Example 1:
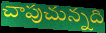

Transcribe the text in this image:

చాపుచున్నది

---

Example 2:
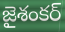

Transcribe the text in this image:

జైశంకర్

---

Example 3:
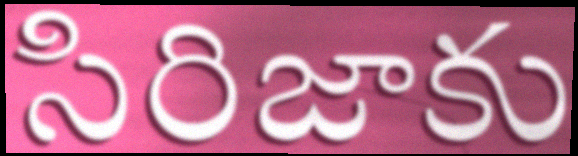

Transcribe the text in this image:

సిరిజాకు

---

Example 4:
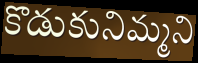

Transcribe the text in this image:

కొడుకునిమ్మని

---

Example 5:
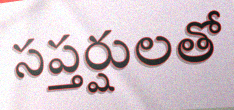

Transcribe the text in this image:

సప్తర్షులతో